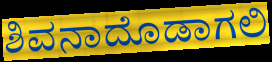
ಶಿವನಾದೊಡಾಗಲಿ